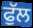
ਫੁੱਲ